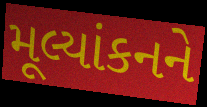
મૂલ્યાંકનને